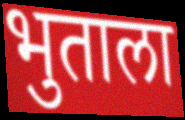
भुताला